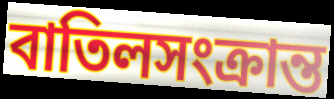
বাতিলসংক্রান্ত